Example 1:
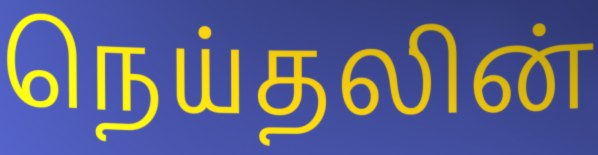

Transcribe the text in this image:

நெய்தலின்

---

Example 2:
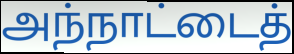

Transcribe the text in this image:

அந்நாட்டைத்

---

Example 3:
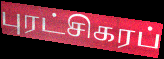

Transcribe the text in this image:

புரட்சிகரப்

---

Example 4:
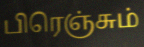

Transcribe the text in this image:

பிரெஞ்சும்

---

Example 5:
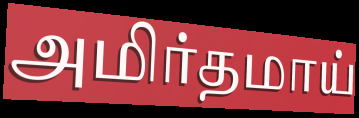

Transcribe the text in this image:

அமிர்தமாய்